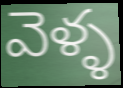
వెళ్ళ